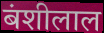
बंशीलाल